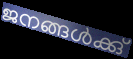
ജനങ്ങൾക്കു്